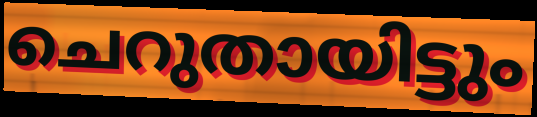
ചെറുതായിട്ടും